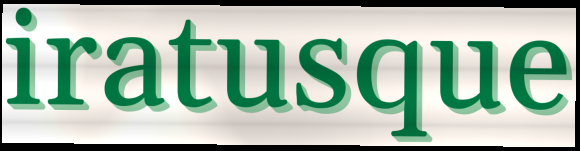
iratusque